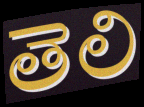
తెలి